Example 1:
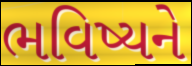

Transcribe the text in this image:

ભવિષ્યને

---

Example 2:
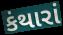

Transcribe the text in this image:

કંથારાં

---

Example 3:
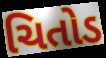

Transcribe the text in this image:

ચિતોડ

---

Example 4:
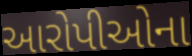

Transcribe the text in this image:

આરોપીઓના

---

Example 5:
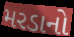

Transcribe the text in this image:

મરડાનો